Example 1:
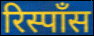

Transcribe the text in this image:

रिस्पॉंस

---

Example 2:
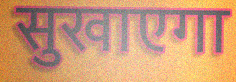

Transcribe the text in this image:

सुखाएगा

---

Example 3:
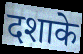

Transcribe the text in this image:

दशाके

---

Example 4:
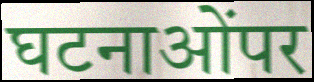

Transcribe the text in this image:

घटनाओंपर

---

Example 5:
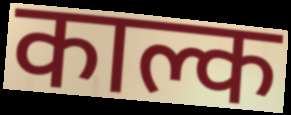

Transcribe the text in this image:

काल्क